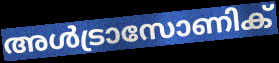
അൾട്രാസോണിക്